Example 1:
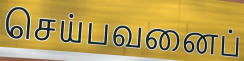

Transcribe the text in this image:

செய்பவனைப்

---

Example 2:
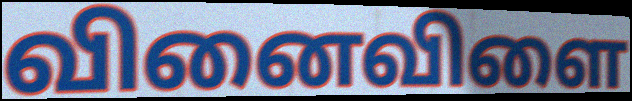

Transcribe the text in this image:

வினைவிளை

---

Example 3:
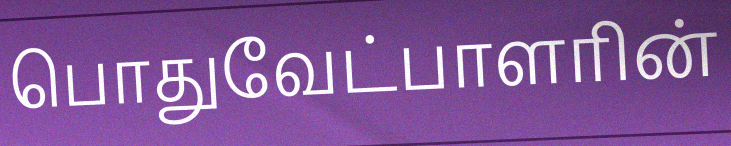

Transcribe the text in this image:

பொதுவேட்பாளரின்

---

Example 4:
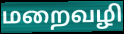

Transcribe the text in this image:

மறைவழி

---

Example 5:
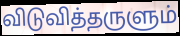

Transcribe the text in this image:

விடுவித்தருளும்